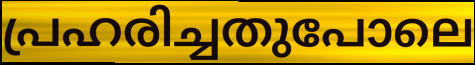
പ്രഹരിച്ചതുപോലെ